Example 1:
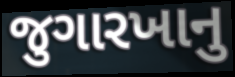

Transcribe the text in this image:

જુગારખાનુ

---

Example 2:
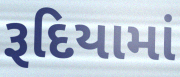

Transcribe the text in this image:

રૂદિયામાં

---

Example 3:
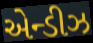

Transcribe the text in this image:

એન્ડીઝ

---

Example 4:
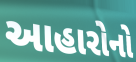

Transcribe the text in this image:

આહારોનો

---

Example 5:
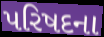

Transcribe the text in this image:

પરિષદના